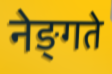
नेङ्गते